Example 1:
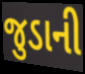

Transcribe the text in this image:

જુડાની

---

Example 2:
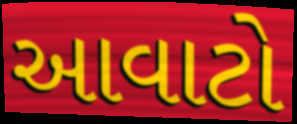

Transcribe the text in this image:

આવાટો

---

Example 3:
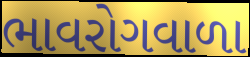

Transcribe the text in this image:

ભાવરોગવાળા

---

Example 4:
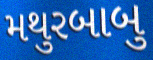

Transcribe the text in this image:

મથુરબાબુ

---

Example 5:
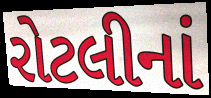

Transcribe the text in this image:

રોટલીનાં